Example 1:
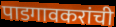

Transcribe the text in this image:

पाडगावकरांची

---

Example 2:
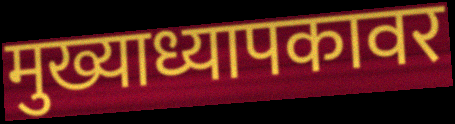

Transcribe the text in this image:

मुख्याध्यापकावर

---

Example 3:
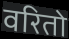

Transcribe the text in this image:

वरितो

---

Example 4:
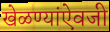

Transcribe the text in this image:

खेळण्यांऐवजी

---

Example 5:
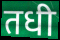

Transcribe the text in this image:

तधी